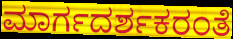
ಮಾರ್ಗದರ್ಶಕರಂತೆ